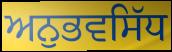
ਅਨੁਭਵਸਿੱਧ